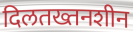
दिलतख्तनशीन